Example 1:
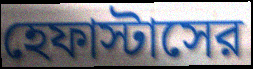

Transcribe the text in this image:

হেফাস্টাসের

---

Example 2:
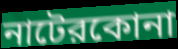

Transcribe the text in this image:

নাটেরকোনা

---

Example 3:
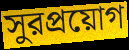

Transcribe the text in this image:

সুরপ্রয়োগ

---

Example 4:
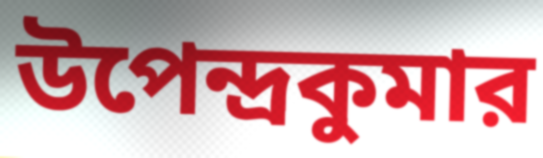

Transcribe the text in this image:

উপেন্দ্রকুমার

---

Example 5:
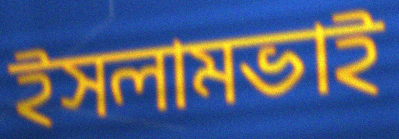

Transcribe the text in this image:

ইসলামভাই